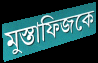
মুস্তাফিজকে